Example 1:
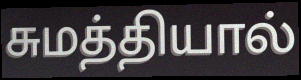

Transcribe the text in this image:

சுமத்தியால்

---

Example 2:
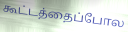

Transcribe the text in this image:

கூட்டத்தைப்போல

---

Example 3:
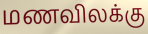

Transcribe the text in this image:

மணவிலக்கு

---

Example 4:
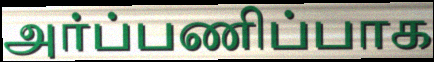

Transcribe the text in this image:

அர்ப்பணிப்பாக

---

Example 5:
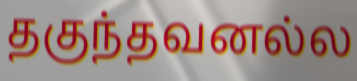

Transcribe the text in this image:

தகுந்தவனல்ல